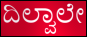
ದಿಲ್ವಾಲೇ